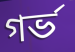
গর্ভ